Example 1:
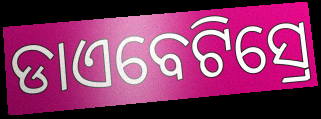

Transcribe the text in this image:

ଡାଏବେଟିସ୍ରେ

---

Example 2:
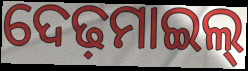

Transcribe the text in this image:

ଦେଢ଼ମାଇଲ୍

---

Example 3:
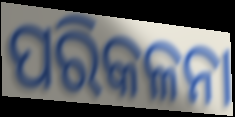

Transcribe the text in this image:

ପରିକଳନା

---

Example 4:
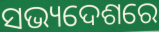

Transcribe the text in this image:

ସଭ୍ୟଦେଶରେ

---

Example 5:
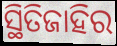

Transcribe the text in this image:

ସ୍ଥିତିଜାହିର